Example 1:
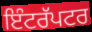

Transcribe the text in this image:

ਇੰਟਰੱਪਟਰ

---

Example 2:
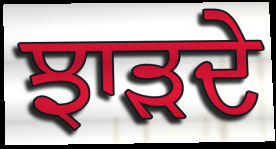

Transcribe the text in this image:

ਝਾੜਦੇ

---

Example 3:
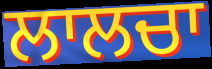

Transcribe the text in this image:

ਲਾਲਚਾ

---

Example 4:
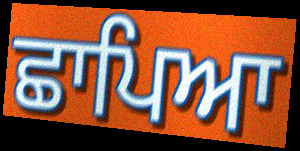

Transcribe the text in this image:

ਛਾਪਿਆ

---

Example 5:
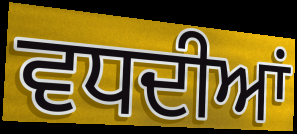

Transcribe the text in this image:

ਵਧਦੀਆਂ